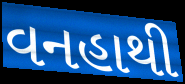
વનહાથી